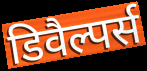
डिवैल्पर्स